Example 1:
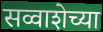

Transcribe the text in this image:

सव्वाशेच्या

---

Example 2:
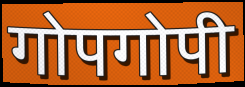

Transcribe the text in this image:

गोपगोपी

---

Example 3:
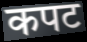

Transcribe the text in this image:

कपट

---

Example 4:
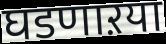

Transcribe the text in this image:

घडणाऱया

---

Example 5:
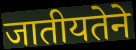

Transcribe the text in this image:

जातीयतेने